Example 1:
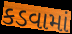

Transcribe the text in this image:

કડવામાં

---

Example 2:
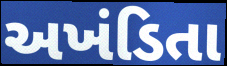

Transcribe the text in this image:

અખંડિતા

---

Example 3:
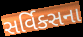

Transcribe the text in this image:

સર્વિક્સના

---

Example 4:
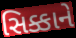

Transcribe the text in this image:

સિક્કાને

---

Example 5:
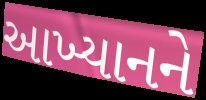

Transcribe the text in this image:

આખ્યાનને